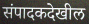
संपादकदेखील